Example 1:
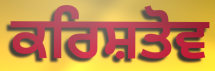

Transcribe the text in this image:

ਕਰਿਸ਼ਤੋਵ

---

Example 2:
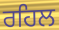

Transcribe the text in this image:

ਰਹਿਲ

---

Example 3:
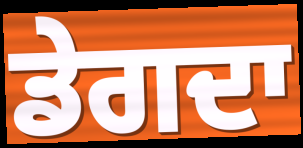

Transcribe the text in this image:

ਡੇਗਦਾ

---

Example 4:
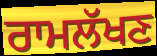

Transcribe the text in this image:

ਰਾਮਲੱਖਣ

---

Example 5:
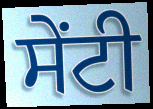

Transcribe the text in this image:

ਸੇਂਟੀ